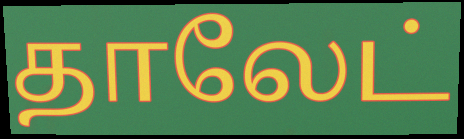
தாலேட்